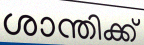
ശാന്തിക്ക്